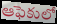
ఆఫెకులో